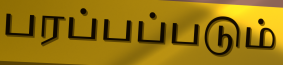
பரப்பப்படும்